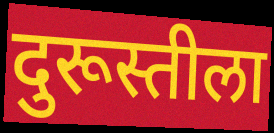
दुरूस्तीला